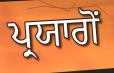
ਪ੍ਰਯਾਗੋਂ